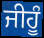
ਜੀਹੂੰ